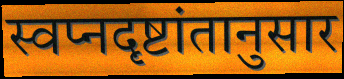
स्वप्नदृष्टांतानुसार